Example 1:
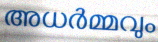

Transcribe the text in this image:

അധർമ്മവും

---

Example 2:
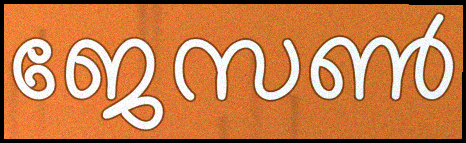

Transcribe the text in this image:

ജേസൺ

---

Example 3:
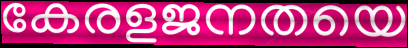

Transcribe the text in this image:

കേരളജനതയെ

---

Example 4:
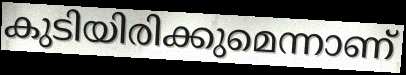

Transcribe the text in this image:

കുടിയിരിക്കുമെന്നാണ്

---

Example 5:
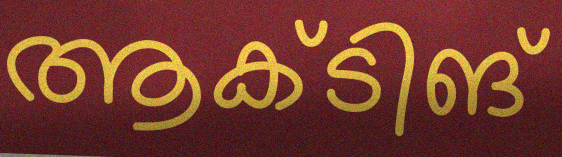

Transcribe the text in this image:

ആക്ടിങ്